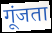
गूंजता